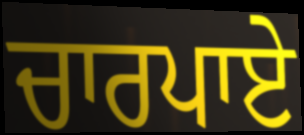
ਚਾਰਪਾਏ